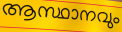
ആസ്ഥാനവും